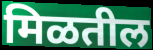
मिळतील